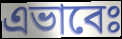
এভাবেঃ